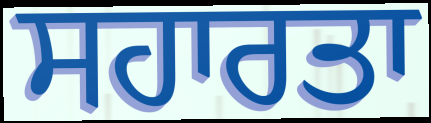
ਸਹਾਰਤਾ